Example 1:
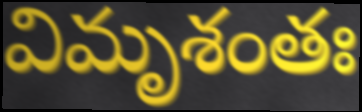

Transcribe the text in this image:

విమృశంతః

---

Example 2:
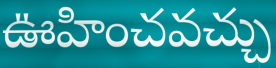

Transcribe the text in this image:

ఊహించవచ్చు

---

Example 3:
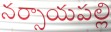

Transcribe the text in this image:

నర్సాయపల్లి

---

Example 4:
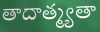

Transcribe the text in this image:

తాదాత్మ్యతా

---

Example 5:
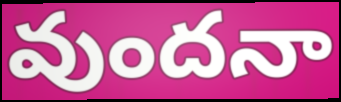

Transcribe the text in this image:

వుందనా